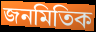
জনমিতিক